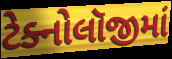
ટેક્નોલૉજીમાં